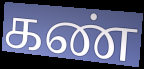
கண்